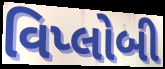
વિપ્લોબી